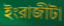
ইংরাজীটা